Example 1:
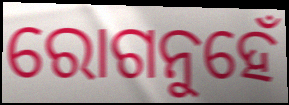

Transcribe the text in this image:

ରୋଗନୁହେଁ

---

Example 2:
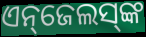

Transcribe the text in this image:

ଏନ୍‌ଜେଲସ୍‌ଙ୍କ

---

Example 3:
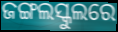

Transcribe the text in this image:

ଜଙ୍ଗଲସ୍କୁଲରେ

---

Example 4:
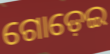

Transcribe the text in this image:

ଗୋଡ଼େଇ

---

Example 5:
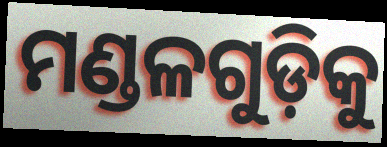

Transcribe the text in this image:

ମଣ୍ଡଳଗୁଡ଼ିକୁ